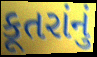
કૂતરાંનું